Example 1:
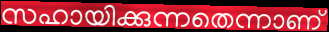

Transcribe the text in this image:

സഹായിക്കുന്നതെന്നാണ്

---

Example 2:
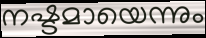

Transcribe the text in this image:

നഷ്ടമായെന്നും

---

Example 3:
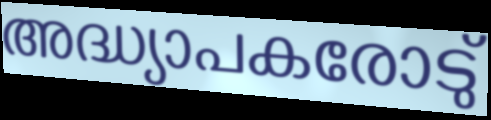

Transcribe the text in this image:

അദ്ധ്യാപകരോടു്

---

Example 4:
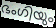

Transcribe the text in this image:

ഭംഗിയും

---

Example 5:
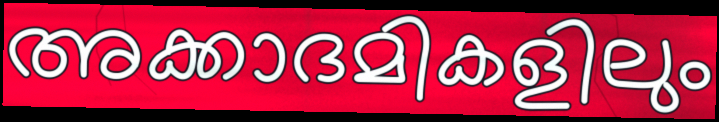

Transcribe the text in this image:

അക്കാദമികളിലും